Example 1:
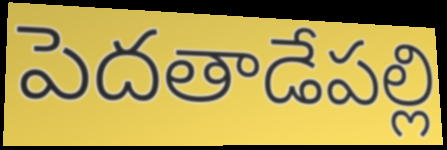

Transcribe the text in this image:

పెదతాడేపల్లి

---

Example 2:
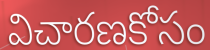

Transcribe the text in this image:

విచారణకోసం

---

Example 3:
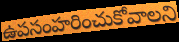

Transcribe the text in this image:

ఉపసంహరించుకోవాలని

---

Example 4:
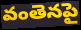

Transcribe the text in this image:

వంతెనపై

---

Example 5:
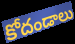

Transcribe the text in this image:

కోదండాలు